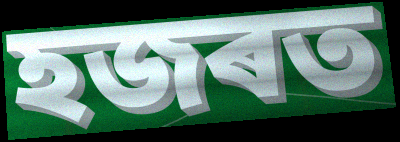
হজৰত